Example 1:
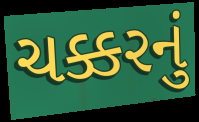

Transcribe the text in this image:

ચક્કરનું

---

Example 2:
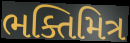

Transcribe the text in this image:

ભક્તિમિત્ર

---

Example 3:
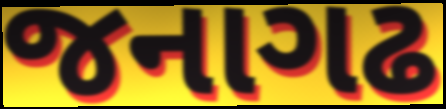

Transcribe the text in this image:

જનાગઢ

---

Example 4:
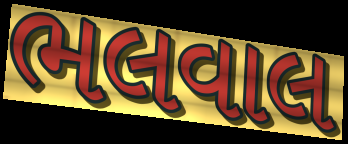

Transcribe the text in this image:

ભલવાલ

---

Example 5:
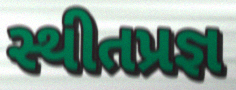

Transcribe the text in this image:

સ્થીતપ્રજ્ઞ